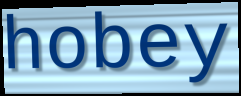
hobey